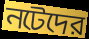
নটেদের